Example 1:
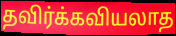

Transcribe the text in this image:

தவிர்க்கவியலாத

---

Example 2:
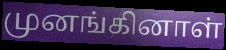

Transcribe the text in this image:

முனங்கினாள்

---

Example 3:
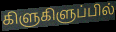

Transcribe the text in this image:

கிளுகிளுப்பில்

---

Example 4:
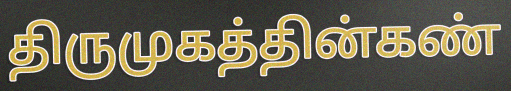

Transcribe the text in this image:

திருமுகத்தின்கண்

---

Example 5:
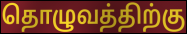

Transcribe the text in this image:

தொழுவத்திற்கு